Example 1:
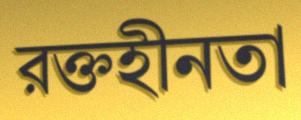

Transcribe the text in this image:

রক্তহীনতা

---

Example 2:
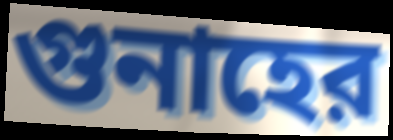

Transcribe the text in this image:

গুনাহের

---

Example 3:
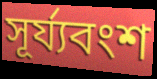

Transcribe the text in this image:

সূর্য্যবংশ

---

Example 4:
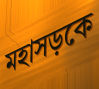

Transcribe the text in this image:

মহাসড়কে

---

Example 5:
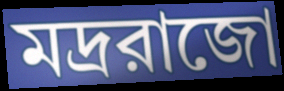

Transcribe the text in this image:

মদ্ররাজো